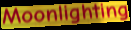
Moonlighting